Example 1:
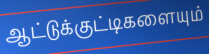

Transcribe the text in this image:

ஆட்டுக்குட்டிகளையும்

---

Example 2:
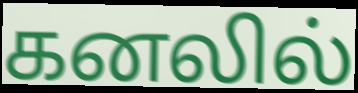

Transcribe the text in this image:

கனலில்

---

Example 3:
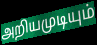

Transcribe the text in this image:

அறியமுடியும்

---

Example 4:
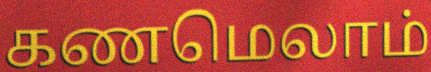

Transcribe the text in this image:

கணமெலாம்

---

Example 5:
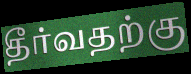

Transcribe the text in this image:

தீர்வதற்கு